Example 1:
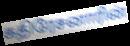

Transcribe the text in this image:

கதிரேசனாரின்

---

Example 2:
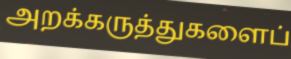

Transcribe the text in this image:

அறக்கருத்துகளைப்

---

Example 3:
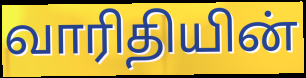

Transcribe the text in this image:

வாரிதியின்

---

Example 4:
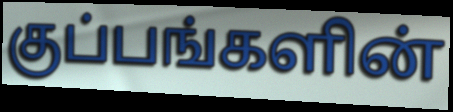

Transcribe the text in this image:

குப்பங்களின்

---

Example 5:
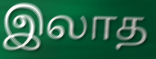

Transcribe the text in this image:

இலாத